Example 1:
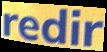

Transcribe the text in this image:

redir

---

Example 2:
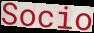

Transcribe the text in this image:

Socio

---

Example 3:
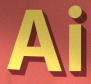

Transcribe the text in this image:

Ai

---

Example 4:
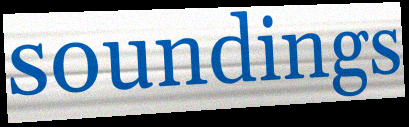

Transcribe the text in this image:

soundings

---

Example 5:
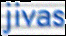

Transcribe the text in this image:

jivas